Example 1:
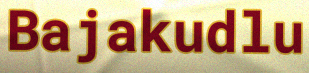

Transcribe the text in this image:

Bajakudlu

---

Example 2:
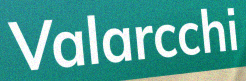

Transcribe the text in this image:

Valarcchi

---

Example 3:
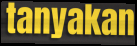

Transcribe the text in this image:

tanyakan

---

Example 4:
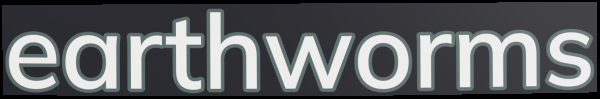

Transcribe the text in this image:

earthworms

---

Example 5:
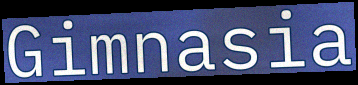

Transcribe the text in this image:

Gimnasia